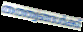
തത്ത്വങ്ങൾക്ക്